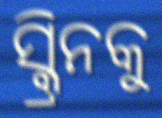
ସ୍କ୍ରିନକୁ